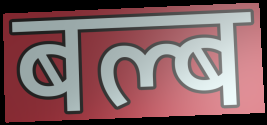
बल्ब